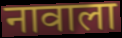
नावाला